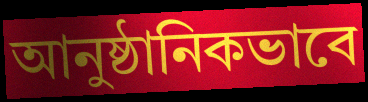
আনুষ্ঠানিকভাবে